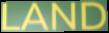
LAND